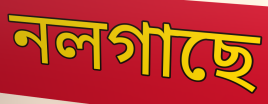
নলগাছে